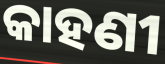
କାହଣୀ